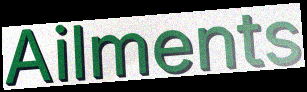
Ailments